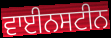
ਵਾਈਨਸਟੀਨ